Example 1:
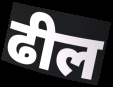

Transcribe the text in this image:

ढील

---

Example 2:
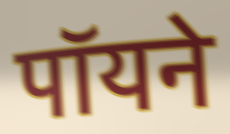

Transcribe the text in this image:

पॉयने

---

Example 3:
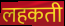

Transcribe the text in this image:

लहकती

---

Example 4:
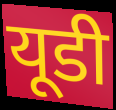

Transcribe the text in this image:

यूडी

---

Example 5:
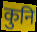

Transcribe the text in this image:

कुनि